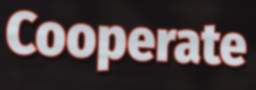
Cooperate